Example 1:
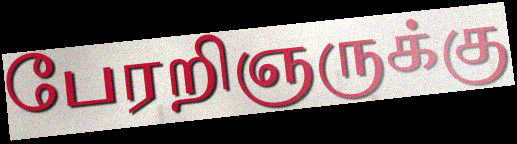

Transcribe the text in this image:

பேரறிஞருக்கு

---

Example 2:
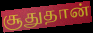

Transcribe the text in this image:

சூதுதான்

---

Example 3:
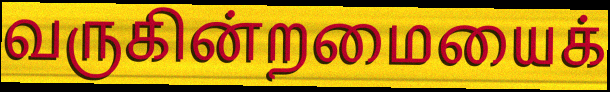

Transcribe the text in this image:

வருகின்றமையைக்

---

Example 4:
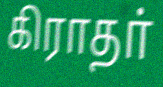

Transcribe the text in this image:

கிராதர்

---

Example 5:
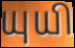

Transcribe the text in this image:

யுயி